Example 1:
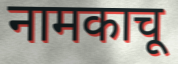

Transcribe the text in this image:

नामकाचू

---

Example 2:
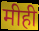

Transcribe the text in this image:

मीही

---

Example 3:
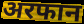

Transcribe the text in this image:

अरफान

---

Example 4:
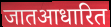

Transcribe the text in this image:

जातआधारित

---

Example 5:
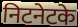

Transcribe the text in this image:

निटनेटके